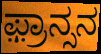
ಫ಼್ರಾನ್ಸನ